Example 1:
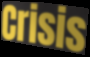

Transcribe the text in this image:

Crisis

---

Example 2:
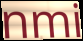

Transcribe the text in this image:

nmi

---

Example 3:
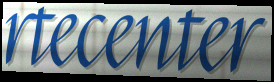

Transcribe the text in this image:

rtecenter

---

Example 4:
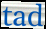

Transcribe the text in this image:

tad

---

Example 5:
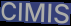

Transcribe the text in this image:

CIMIS